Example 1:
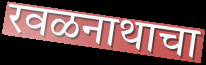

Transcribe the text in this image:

रवळनाथाचा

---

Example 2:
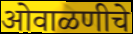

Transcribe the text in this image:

ओवाळणीचे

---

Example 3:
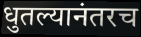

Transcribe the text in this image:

धुतल्यानंतरच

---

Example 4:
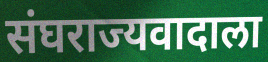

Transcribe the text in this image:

संघराज्यवादाला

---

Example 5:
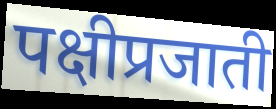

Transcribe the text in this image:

पक्षीप्रजाती